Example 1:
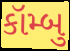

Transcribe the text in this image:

કૉમ્બુ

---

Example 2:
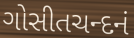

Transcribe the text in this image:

ગોસીતચન્દનં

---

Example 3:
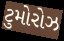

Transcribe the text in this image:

ટુમોરોઝ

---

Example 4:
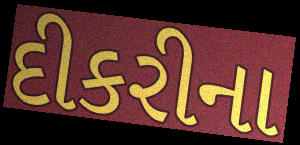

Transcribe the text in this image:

દીકરીના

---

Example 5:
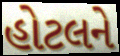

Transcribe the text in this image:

હોટલને